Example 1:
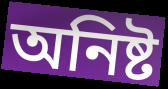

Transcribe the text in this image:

অনিষ্ট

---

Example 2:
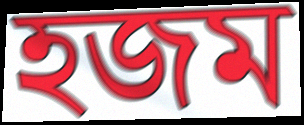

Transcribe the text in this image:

হজম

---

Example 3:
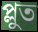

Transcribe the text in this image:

প্লুত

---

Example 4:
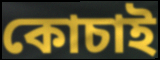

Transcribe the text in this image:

কোচাই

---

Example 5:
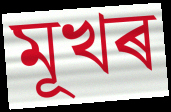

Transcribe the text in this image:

মূখৰ